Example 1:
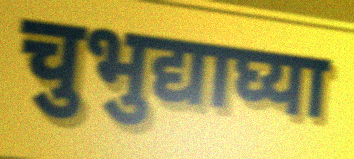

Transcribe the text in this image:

चुभुद्याघ्या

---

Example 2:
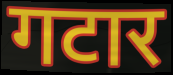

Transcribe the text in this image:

गटार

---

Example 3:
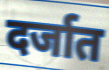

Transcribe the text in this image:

दर्जात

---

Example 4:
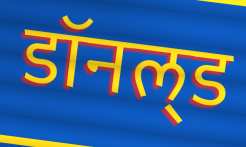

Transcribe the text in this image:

डॉनल्ड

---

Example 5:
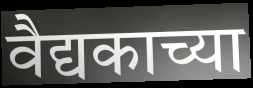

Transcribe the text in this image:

वैद्यकाच्या